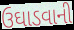
ઉઘાડવાની